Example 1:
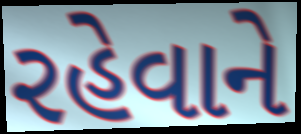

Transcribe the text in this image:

રહેવાને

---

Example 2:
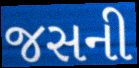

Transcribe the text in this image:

જસની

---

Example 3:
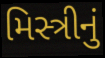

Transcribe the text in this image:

મિસ્ત્રીનું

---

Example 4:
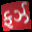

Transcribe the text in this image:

ફર્ઝ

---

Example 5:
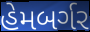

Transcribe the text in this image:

હેમબર્ગર